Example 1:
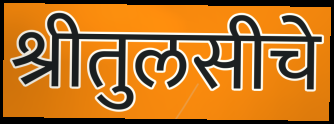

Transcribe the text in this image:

श्रीतुलसीचे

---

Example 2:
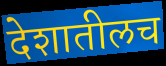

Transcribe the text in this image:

देशातीलच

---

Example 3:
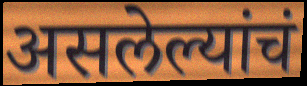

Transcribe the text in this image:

असलेल्यांचं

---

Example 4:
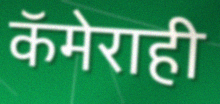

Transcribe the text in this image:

कॅमेराही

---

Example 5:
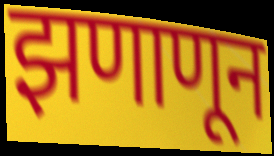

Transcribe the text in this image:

झणाणून